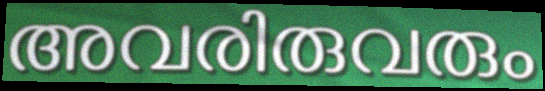
അവരിരുവരും